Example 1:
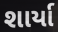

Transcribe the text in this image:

શાર્યા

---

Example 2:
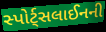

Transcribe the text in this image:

સ્પોર્ટ્સલાઈનની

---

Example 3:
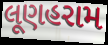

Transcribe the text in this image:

લૂણહરામ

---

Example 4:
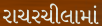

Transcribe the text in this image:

રાચરચીલામાં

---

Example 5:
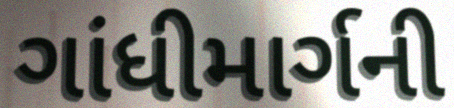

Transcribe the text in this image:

ગાંધીમાર્ગની